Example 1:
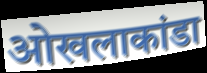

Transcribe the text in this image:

ओखलाकांडा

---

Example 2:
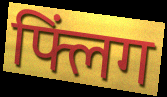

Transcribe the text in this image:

फ्लिंग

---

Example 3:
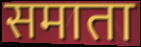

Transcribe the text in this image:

समाता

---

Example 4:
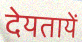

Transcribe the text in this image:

देयतायें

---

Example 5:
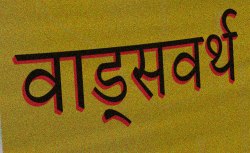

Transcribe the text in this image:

वाड्सवर्थ